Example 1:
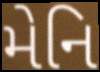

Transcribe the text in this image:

મેનિ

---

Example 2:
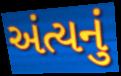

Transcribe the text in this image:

અંત્યનું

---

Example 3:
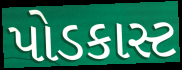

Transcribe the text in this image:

પોડકાસ્ટ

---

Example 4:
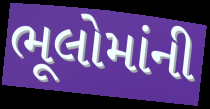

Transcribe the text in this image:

ભૂલોમાંની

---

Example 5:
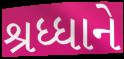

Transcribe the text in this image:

શ્રધ્ધાને